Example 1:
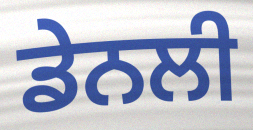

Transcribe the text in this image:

ਡੇਨਲੀ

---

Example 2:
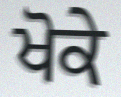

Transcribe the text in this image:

ਖੋਕੇ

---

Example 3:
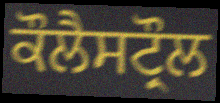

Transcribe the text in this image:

ਕੌਲੈਸਟ੍ਰੌਲ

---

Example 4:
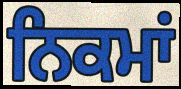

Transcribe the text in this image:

ਨਿਕਮਾਂ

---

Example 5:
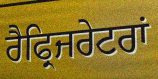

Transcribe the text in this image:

ਰੈਫ੍ਰਿਜਰੇਟਰਾਂ